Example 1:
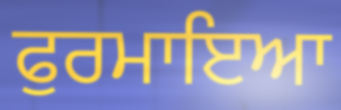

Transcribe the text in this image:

ਫੁਰਮਾਇਆ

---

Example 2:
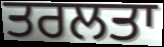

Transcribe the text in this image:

ਤਰਲਤਾ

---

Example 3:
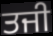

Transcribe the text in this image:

ਤਜੀ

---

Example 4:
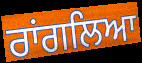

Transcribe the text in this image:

ਰਾਂਗਲਿਆ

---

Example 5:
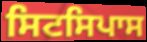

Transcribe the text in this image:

ਸਿਟਸਿਪਾਸ